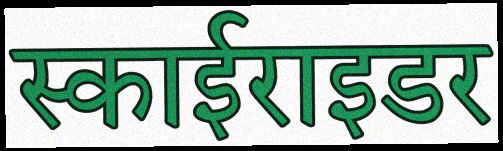
स्काईराइडर